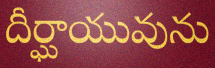
దీర్ఘాయువును